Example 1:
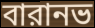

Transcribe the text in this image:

বারানভ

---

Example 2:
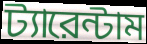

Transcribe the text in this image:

ট্যারেন্টাম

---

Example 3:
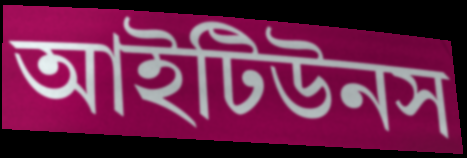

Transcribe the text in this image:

আইটিউনস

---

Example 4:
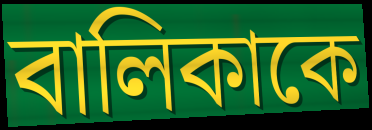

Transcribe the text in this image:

বালিকাকে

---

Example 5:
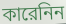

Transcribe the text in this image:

কারেনিন